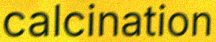
calcination